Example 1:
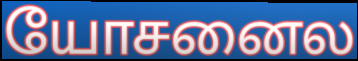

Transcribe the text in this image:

யோசனைல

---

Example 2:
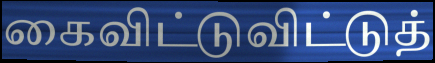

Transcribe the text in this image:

கைவிட்டுவிட்டுத்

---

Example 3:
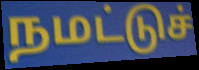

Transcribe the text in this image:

நமட்டுச்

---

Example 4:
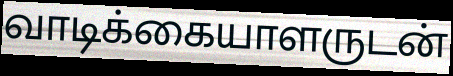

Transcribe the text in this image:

வாடிக்கையாளருடன்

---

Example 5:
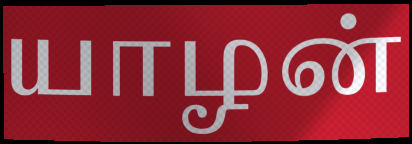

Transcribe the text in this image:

யாழன்